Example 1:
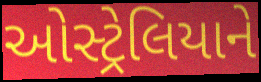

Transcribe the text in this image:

ઓસ્ટ્રેલિયાને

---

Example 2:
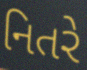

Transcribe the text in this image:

નિતરે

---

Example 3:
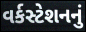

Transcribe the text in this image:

વર્કસ્ટેશનનું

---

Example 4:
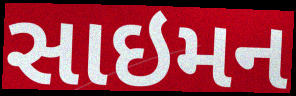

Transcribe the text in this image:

સાઇમન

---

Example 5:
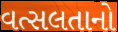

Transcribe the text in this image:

વત્સલતાનો